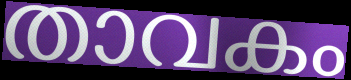
താവകം